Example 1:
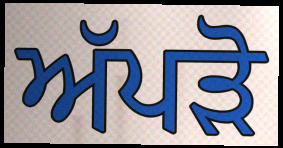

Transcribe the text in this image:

ਅੱਪੜੋ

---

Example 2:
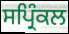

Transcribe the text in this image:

ਸਪ੍ਰਿੰਕਲ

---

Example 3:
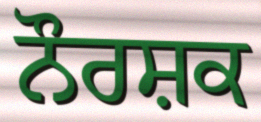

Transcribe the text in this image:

ਨੌਰਸ਼ਕ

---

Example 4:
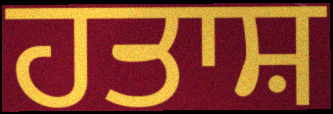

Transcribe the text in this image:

ਹਤਾਸ਼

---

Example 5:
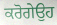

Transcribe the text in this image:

ਕਰੋਗੇਉਹ